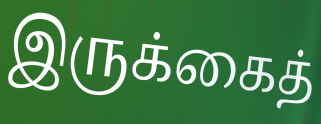
இருக்கைத்